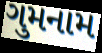
ગુમનામ